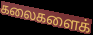
கலைகளைக்